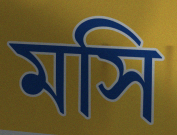
মসি